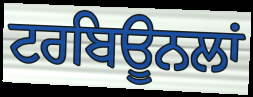
ਟਰਬਿਊਨਲਾਂ